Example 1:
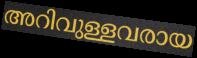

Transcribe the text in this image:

അറിവുള്ളവരായ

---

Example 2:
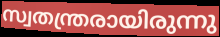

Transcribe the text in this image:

സ്വതന്ത്രരായിരുന്നു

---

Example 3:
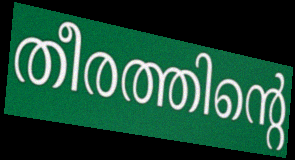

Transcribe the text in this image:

തീരത്തിന്റെ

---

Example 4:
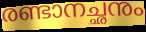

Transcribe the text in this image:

രണ്ടാനച്ഛനും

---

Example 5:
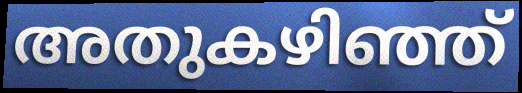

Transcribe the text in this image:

അതുകഴിഞ്ഞ്